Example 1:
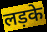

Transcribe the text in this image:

लड़के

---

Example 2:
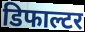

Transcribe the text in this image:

डिफाल्टर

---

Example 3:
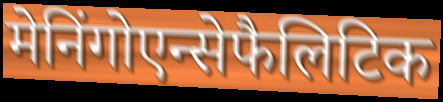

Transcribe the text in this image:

मेनिंगोएन्सेफैलिटिक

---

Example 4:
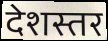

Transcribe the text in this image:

देशस्तर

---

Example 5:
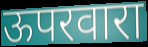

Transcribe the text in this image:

ऊपरवारा